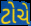
ટોચે